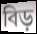
বিড়